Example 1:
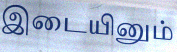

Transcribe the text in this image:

இடையினும்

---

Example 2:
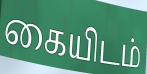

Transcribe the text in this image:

கையிடம்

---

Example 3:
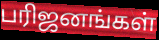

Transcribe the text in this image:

பரிஜனங்கள்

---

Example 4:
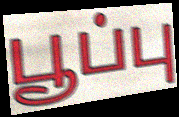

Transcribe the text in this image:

பூப்பு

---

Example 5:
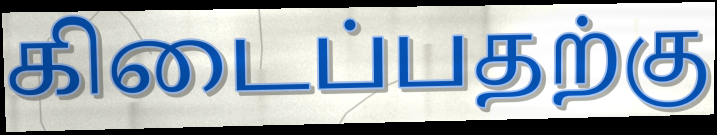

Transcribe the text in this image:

கிடைப்பதற்கு